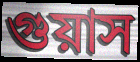
গুয়াস